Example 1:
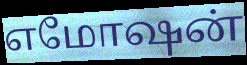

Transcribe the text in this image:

எமோஷன்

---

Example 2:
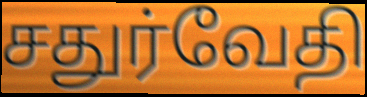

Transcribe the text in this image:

சதுர்வேதி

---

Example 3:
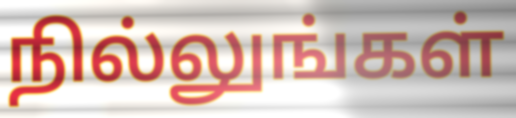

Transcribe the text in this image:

நில்லுங்கள்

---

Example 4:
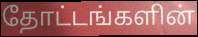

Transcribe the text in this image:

தோட்டங்களின்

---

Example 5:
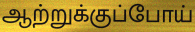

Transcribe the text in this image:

ஆற்றுக்குப்போய்